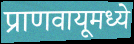
प्राणवायूमध्ये